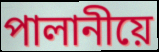
পালানীয়ে